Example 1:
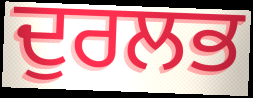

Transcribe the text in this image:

ਦੁਰਲਭ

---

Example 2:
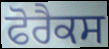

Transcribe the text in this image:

ਫੋਰੈਕਸ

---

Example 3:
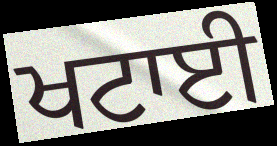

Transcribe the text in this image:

ਖਟਾਈ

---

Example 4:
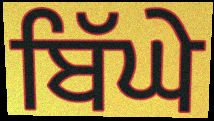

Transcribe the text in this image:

ਬਿੱਘੇ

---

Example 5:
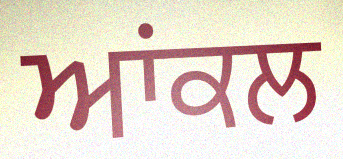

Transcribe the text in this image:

ਆਂਕਲ